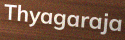
Thyagaraja